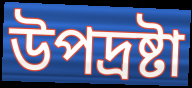
উপদ্রষ্টা